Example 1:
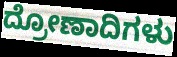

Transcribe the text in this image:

ದ್ರೋಣಾದಿಗಳು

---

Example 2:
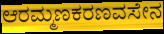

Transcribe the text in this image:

ಆರಮ್ಮಣಕರಣವಸೇನ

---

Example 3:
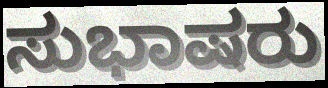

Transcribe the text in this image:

ಸುಭಾಷರು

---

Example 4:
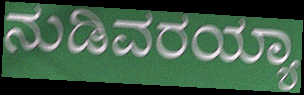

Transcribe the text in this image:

ನುಡಿವರಯ್ಯಾ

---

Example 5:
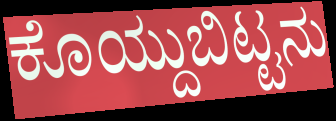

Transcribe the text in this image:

ಕೊಯ್ದುಬಿಟ್ಟನು